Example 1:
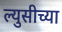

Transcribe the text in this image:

ल्युसीच्या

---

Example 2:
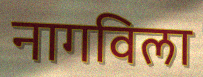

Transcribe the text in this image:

नागविला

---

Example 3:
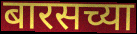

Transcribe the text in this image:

बारसच्या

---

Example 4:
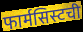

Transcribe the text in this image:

फार्मसिस्टची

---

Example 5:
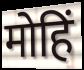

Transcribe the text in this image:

मोहिं